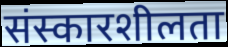
संस्कारशीलता